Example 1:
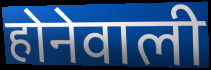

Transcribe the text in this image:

होनेवाली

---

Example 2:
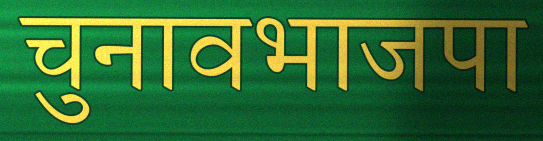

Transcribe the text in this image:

चुनावभाजपा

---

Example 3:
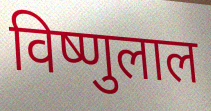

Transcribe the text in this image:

विष्णुलाल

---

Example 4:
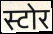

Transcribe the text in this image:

स्टोर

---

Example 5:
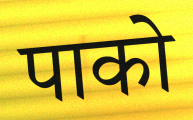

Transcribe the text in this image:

पाको